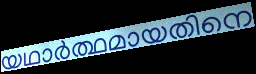
യഥാർത്ഥമായതിനെ